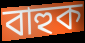
বাহুক